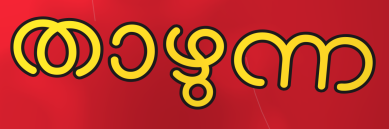
താഴുന്ന